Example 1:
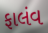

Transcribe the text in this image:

ફાલંવ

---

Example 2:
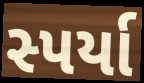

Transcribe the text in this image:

સ્પર્યા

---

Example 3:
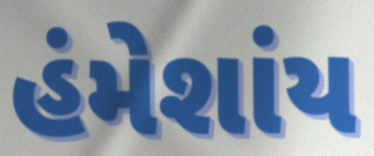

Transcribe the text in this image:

હંમેશાંય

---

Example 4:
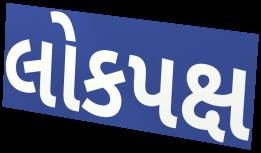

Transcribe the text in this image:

લોકપક્ષ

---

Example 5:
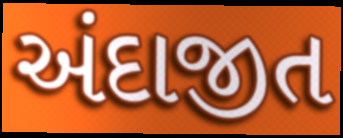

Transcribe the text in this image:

અંદાજીત